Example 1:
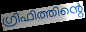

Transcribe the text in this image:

ഗ്രിഫിത്തിന്റെ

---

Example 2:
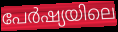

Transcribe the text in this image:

പേർഷ്യയിലെ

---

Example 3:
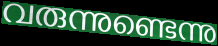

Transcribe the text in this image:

വരുന്നുണ്ടെന്നു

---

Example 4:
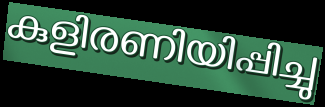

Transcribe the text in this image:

കുളിരണിയിപ്പിച്ചു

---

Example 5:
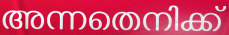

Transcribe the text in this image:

അന്നതെനിക്ക്